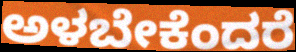
ಅಳಬೇಕೆಂದರೆ